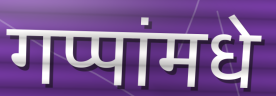
गप्पांमधे